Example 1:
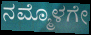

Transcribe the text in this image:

ನಮ್ಮೊಳಗೇ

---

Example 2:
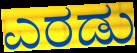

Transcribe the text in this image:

ಎರಡು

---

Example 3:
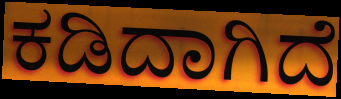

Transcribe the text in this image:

ಕಡಿದಾಗಿದೆ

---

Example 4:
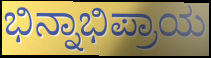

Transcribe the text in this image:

ಭಿನ್ನಾಭಿಪ್ರಾಯ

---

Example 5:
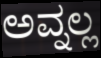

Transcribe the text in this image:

ಅವ್ನಲ್ಲ